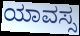
ಯಾವಸ್ಸ